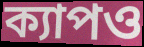
ক্যাপও